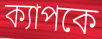
ক্যাপকে